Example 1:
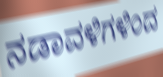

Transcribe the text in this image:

ನಡಾವಳಿಗಳಿಂದ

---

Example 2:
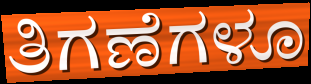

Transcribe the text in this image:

ತಿಗಣೆಗಳೂ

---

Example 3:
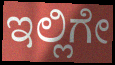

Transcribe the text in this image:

ಇಲ್ಲಿಗೇ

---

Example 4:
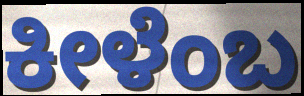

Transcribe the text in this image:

ಕೀಳೆಂಬ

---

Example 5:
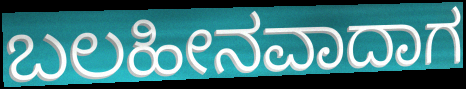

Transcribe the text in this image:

ಬಲಹೀನವಾದಾಗ